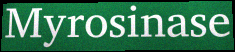
Myrosinase